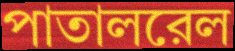
পাতালরেল